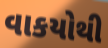
વાકયોથી